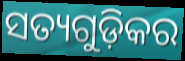
ସତ୍ୟଗୁଡ଼ିକର